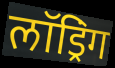
लॉड्रिंग